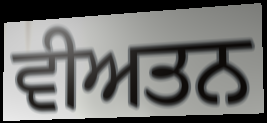
ਵੀਅਤਨ